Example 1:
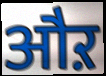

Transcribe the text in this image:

औऱ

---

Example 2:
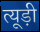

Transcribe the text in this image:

त्यूड़ी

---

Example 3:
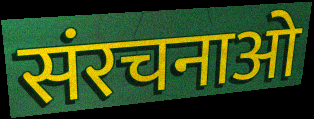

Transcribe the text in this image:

संरचनाओ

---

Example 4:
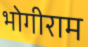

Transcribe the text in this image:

भोगीराम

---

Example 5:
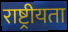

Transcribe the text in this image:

राष्ट्रीयता